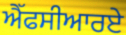
ਐੱਫਸੀਆਰਏ